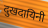
दुखदायिनी